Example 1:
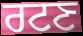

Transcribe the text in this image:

ਰਟਣ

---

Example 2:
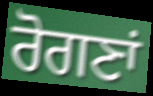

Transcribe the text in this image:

ਰੋਗਣਾਂ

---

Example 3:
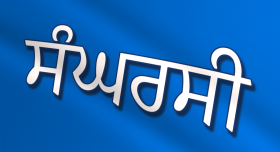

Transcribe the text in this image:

ਸੰਘਰਸੀ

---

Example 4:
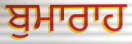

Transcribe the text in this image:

ਬੁਮਾਰਾਹ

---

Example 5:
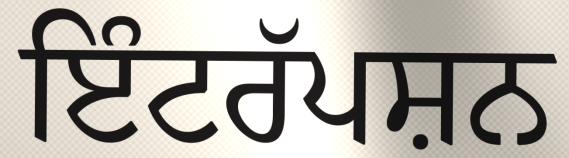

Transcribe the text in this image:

ਇੰਟਰੱਪਸ਼ਨ